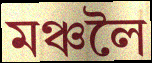
মঞ্চলৈ